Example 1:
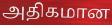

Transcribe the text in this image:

அதிகமான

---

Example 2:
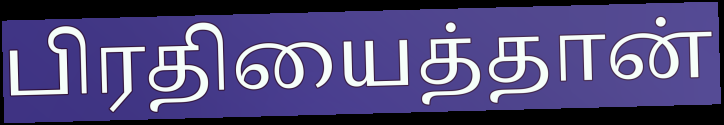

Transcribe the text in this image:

பிரதியைத்தான்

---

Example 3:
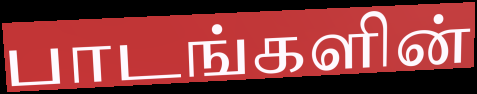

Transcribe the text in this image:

பாடங்களின்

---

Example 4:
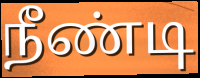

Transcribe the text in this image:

நீண்டி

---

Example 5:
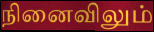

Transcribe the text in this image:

நினைவிலும்